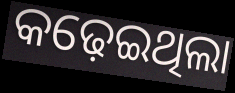
କଢ଼େଇଥିଲା